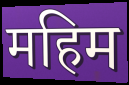
महिम